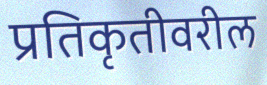
प्रतिकृतीवरील